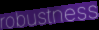
robustness